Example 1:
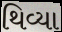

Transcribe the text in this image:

થિવ્યા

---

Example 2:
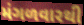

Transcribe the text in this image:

મંગળવારથી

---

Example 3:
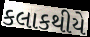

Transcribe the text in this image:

કલાકથીયે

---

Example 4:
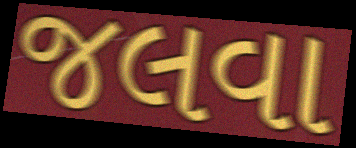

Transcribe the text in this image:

જલવા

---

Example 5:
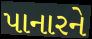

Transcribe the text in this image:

પાનારને